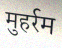
मुहर्रम